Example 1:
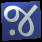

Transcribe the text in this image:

જ઼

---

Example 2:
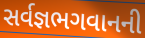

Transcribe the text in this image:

સર્વજ્ઞભગવાનની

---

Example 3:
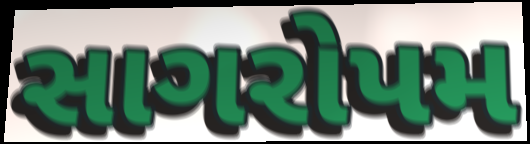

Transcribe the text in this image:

સાગરોપમ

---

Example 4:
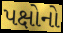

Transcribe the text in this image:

પક્ષોનો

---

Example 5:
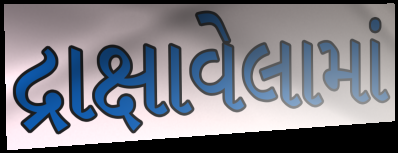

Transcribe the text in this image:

દ્રાક્ષાવેલામાં